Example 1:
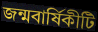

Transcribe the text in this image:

জন্মবার্ষিকীটি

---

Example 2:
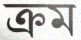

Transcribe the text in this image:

ক্রম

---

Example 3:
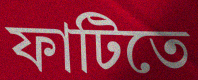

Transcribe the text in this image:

ফাটিতে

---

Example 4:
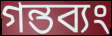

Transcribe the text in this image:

গন্তব্যং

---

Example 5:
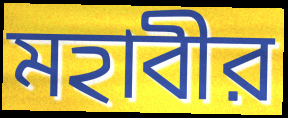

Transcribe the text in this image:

মহাবীর